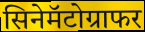
सिनेमॅटोग्राफर